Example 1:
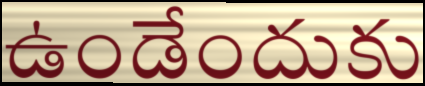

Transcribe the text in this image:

ఉండేందుకు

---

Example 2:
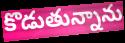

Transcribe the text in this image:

కొడుతున్నాను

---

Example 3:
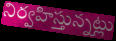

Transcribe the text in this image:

నిర్వహిస్తున్నట్లు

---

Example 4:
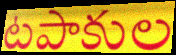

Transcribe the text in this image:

టపాకుల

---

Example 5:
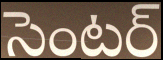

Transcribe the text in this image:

సెంటర్